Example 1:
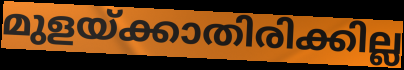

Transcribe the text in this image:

മുളയ്ക്കാതിരിക്കില്ല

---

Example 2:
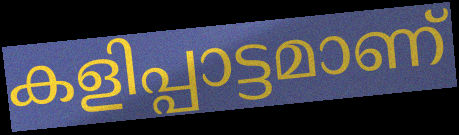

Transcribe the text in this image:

കളിപ്പാട്ടമാണ്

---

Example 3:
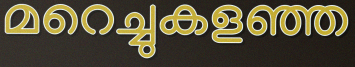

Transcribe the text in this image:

മറെച്ചുകളഞ്ഞ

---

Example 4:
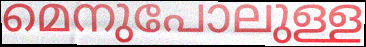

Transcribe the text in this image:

മെനുപോലുള്ള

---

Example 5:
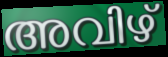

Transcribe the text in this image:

അവിഴ്